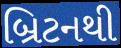
બ્રિટનથી